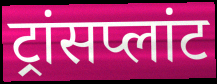
ट्रांसप्लांट